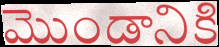
మొండానికి